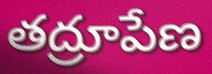
తద్రూపేణ